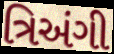
ત્રિઅંગી